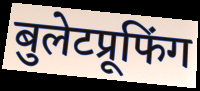
बुलेटप्रूफिंग